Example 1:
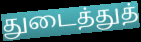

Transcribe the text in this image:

துடைத்துத்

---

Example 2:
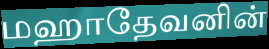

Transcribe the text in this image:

மஹாதேவனின்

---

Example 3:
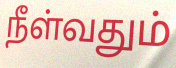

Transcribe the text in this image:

நீள்வதும்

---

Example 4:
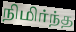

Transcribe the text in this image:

நிமிர்ந்த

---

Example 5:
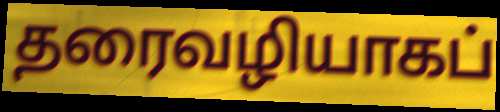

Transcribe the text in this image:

தரைவழியாகப்